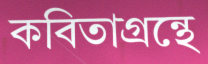
কবিতাগ্রন্থে